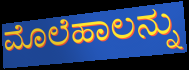
ಮೊಲೆಹಾಲನ್ನು